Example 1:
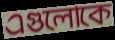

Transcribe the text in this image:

এগুলোকে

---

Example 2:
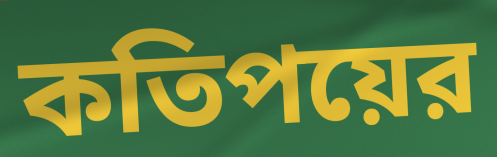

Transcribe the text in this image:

কতিপয়ের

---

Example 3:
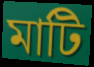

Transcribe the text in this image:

মাটি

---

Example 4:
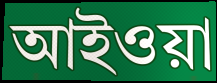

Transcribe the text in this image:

আইওয়া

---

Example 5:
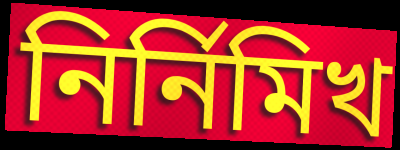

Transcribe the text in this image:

নির্নিমিখ